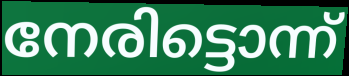
നേരിട്ടൊന്ന്